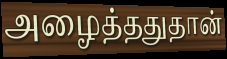
அழைத்ததுதான்